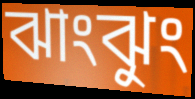
ঝাংঝুং